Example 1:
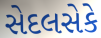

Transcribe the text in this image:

સેદલસેકે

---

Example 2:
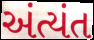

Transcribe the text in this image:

અંત્યંત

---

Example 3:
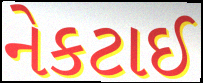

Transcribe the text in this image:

નેકટાઈ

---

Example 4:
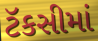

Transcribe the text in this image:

ટૅકસીમાં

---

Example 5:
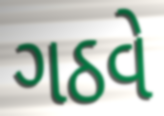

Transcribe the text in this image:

ગઠવે